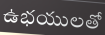
ఉభయులతో